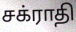
சக்ராதி